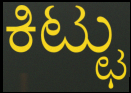
ಕಿಟ್ಟು